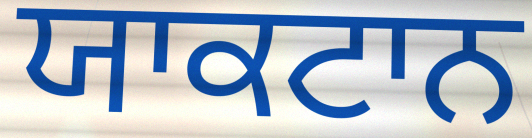
ਯਾਕਟਾਨ